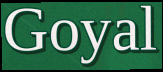
Goyal